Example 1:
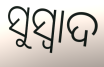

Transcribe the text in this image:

ସୁସ୍ୱାଦ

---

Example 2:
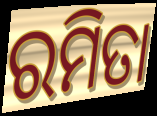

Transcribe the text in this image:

ରମିତା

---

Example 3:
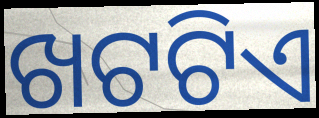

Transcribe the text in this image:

ଖଟଟିଏ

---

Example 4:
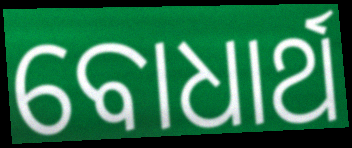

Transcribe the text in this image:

ବୋଧାର୍ଥ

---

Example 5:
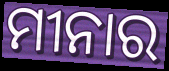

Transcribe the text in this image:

ମୀନାର